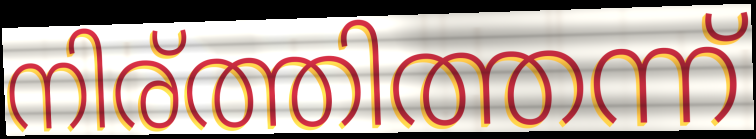
നിര്ത്തിത്തന്ന്